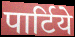
पार्टिये